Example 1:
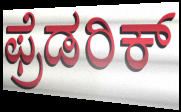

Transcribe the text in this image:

ಫ್ರೆಡರಿಕ್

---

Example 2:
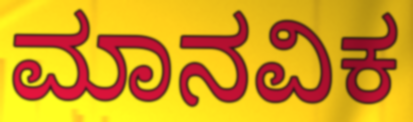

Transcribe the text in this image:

ಮಾನವಿಕ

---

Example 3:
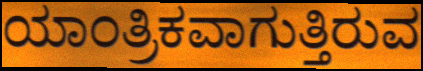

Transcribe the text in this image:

ಯಾಂತ್ರಿಕವಾಗುತ್ತಿರುವ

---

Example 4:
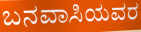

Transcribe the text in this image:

ಬನವಾಸಿಯವರ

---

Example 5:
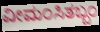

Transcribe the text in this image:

ವೀಮಂಸಿತಬ್ಬಂ